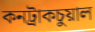
কনট্রাকচুয়াল